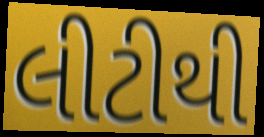
લીટીથી